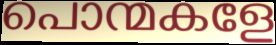
പൊന്മകളേ